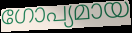
ഗോപ്യമായ